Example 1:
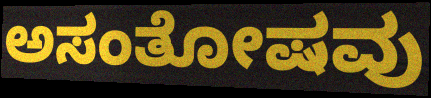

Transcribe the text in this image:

ಅಸಂತೋಷವು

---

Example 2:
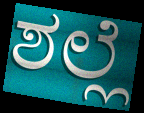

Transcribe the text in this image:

ಶಲ್ಲೆ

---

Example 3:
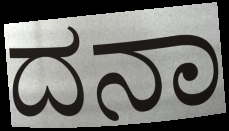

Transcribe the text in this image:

ದನಾ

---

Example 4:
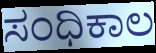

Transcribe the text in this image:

ಸಂಧಿಕಾಲ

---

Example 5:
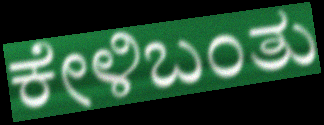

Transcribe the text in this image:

ಕೇಳಿಬಂತು